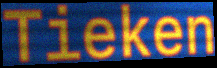
Tieken